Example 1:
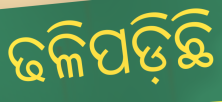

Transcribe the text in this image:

ଢଳିପଡ଼ିଛି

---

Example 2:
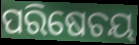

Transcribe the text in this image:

ପରିଷେଚୟ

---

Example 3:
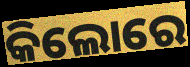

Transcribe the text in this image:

କିଲୋରେ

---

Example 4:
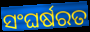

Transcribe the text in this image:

ସଂଘର୍ଷରତ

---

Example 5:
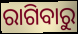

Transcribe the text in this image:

ରାଗିବାରୁ